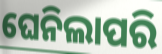
ଘେନିଲାପରି